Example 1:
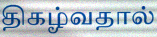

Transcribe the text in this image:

திகழ்வதால்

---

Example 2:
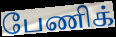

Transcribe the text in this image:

பேணிக்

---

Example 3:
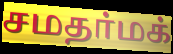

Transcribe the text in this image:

சமதர்மக்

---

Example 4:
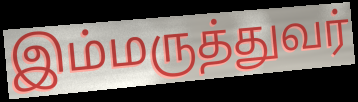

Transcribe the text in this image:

இம்மருத்துவர்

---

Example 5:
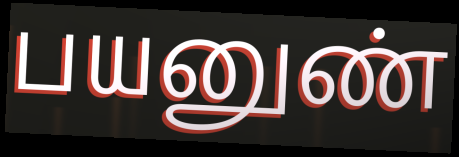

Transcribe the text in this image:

பயனுண்